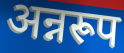
अन्नरूप